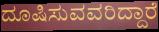
ದೂಷಿಸುವವರಿದ್ದಾರೆ